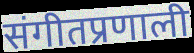
संगीतप्रणाली